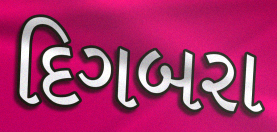
દિગબરા